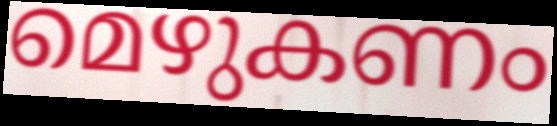
മെഴുകണം